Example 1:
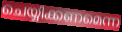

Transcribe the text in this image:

ചെയ്യിക്കണമെന്ന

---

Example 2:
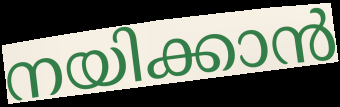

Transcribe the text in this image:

നയിക്കാൻ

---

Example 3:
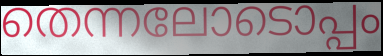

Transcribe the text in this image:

തെന്നലോടൊപ്പം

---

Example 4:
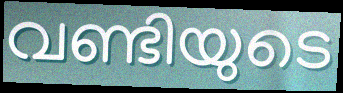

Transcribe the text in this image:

വണ്ടിയുടെ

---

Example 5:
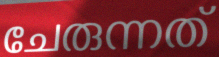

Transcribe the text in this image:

ചേരുന്നത്